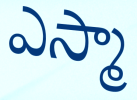
ఎస్మా